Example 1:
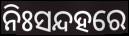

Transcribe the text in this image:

ନିଃସନ୍ଦହରେ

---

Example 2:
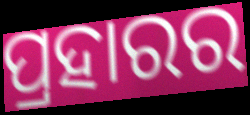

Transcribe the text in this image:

ପ୍ରହାରର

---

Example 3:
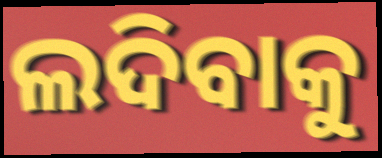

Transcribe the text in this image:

ଲଦିବାକୁ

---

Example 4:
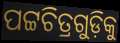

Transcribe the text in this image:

ପଟ୍ଟଚିତ୍ରଗୁଡ଼ିକୁ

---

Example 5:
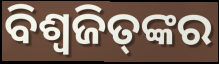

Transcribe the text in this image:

ବିଶ୍ଵଜିତ୍‌ଙ୍କର